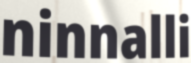
ninnalli